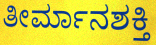
ತೀರ್ಮಾನಶಕ್ತಿ